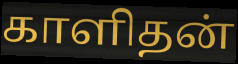
காளிதன்